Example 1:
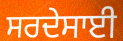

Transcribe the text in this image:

ਸਰਦੇਸਾਈ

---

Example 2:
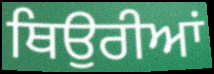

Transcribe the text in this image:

ਥਿਉਰੀਆਂ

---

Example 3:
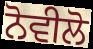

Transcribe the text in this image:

ਨੋਵੀਲੋ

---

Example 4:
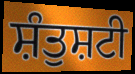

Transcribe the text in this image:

ਸ਼ੰਤੁਸ਼ਟੀ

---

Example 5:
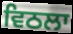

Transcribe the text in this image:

ਵਿਠਲਾ